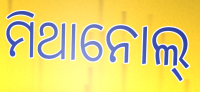
ମିଥାନୋଲ୍